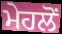
ਮੇਹਲੋਂ